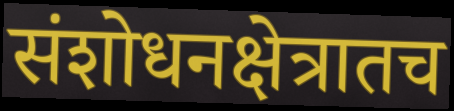
संशोधनक्षेत्रातच